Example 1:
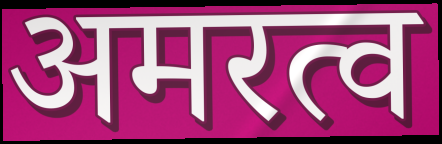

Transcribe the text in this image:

अमरत्व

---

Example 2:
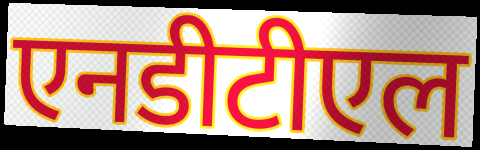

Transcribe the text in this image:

एनडीटीएल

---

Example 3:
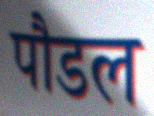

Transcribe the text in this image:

पौडल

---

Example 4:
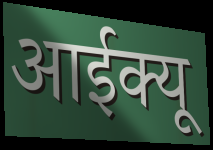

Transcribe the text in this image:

आईक्यू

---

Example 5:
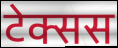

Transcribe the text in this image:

टेक्सस